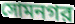
সোমনগর